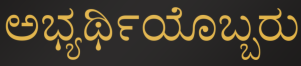
ಅಭ್ಯರ್ಥಿಯೊಬ್ಬರು